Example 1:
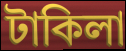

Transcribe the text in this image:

টাকিলা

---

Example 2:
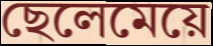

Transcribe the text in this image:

ছেলেমেয়ে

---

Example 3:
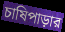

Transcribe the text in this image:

চাষিপাড়ার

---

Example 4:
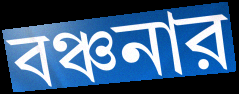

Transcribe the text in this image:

বঞ্চনার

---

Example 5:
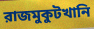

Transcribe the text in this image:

রাজমুকুটখানি